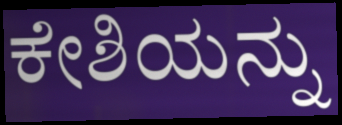
ಕೇಶಿಯನ್ನು